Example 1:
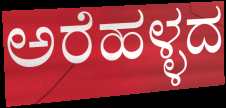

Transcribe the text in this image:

ಅರೆಹಳ್ಳದ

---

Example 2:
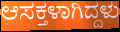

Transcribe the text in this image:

ಆಸಕ್ತಳಾಗಿದ್ದಳು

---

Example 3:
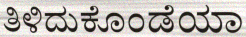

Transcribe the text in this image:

ತಿಳಿದುಕೊಂಡೆಯಾ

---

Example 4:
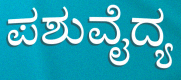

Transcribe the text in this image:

ಪಶುವೈದ್ಯ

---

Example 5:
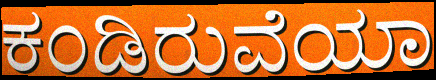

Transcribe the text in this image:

ಕಂಡಿರುವೆಯಾ